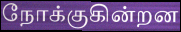
நோக்குகின்றன